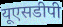
यूएसडीपी